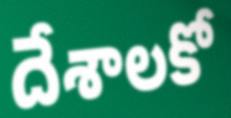
దేశాలకో